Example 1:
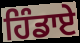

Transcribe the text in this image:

ਹਿੰਡਾਏ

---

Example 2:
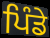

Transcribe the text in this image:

ਪਿੰਡੇ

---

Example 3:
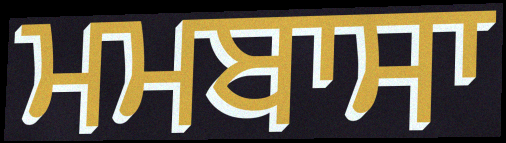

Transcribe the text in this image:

ਮਮਬਾਸਾ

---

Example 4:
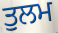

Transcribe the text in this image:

ਤੁਲਮ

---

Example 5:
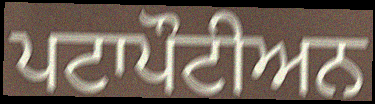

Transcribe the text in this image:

ਪਟਾਪੌਟੀਅਨ